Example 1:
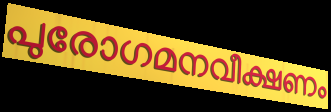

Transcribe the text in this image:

പുരോഗമനവീക്ഷണം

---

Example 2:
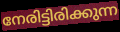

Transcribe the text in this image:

നേരിട്ടിരിക്കുന്ന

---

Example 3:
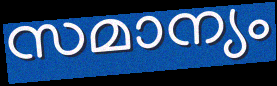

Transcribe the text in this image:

സമാന്യം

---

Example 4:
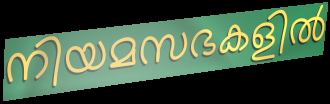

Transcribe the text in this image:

നിയമസഭകളിൽ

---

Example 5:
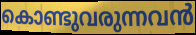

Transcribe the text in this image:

കൊണ്ടുവരുന്നവൻ